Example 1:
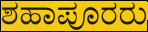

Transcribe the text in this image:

ಶಹಾಪೂರರು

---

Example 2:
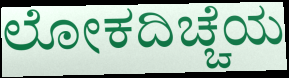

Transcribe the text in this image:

ಲೋಕದಿಚ್ಚೆಯ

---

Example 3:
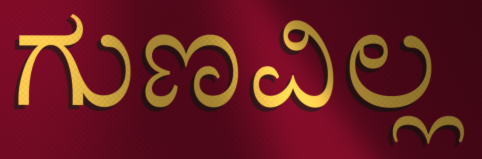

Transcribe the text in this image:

ಗುಣವಿಲ್ಲ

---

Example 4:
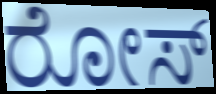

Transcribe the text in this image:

ರೋಸ್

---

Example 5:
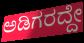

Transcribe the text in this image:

ಅಡಿಗರದ್ದೇ